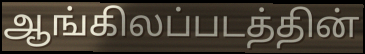
ஆங்கிலப்படத்தின்